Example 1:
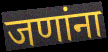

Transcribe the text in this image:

जणांना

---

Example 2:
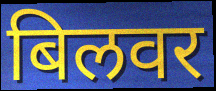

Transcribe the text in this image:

बिलवर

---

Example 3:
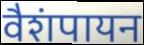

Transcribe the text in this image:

वैशंपायन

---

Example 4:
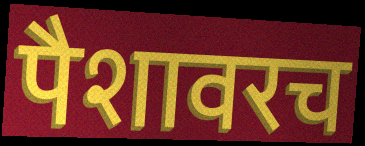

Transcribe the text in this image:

पैशावरच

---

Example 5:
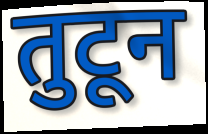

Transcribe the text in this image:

तुटून